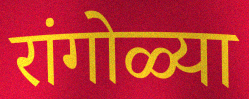
रांगोळ्या